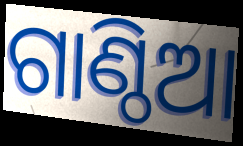
ଗାଣ୍ଠିଆ